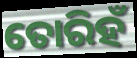
ତୋରିହଁ